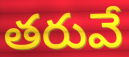
తరువే